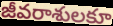
జీవరాశులకూ